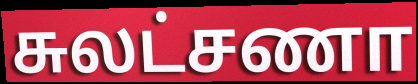
சுலட்சணா